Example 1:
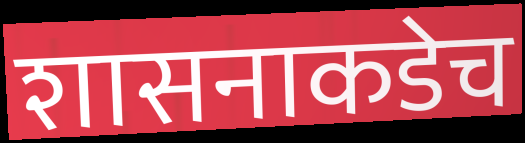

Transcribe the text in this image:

शासनाकडेच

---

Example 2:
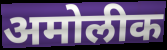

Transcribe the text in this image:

अमोलीक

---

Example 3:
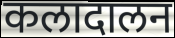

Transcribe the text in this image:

कलादालन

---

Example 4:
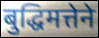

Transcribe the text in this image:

बुद्धिमत्तेने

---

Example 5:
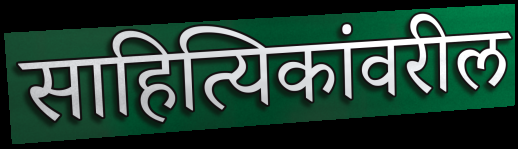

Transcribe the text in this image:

साहित्यिकांवरील